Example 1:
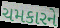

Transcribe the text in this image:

ચમકારને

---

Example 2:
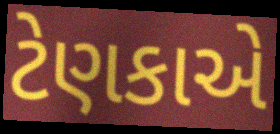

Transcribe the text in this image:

ટેણકાએ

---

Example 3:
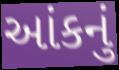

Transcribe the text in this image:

આંકનું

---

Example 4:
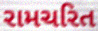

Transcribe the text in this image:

રામચરિત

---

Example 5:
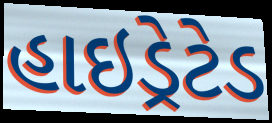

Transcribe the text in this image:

હાઇડ્રેટેડ